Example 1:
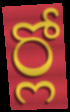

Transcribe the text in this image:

ర్లో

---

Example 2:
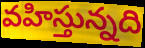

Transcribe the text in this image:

వహిస్తున్నది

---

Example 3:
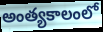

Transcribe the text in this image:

అంత్యకాలంలో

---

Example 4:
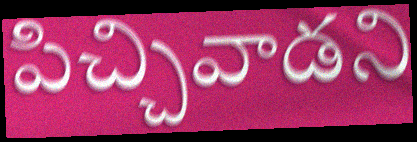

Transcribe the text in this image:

పిచ్చివాడని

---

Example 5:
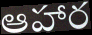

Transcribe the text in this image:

ఆహార